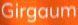
Girgaum